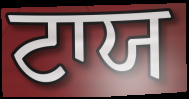
ਟਾਯ